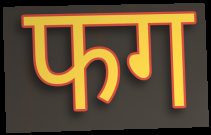
फग